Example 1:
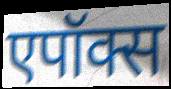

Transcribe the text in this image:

एपॉक्स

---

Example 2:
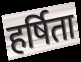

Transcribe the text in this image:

हर्षिता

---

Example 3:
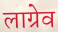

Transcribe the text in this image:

लाग्रेव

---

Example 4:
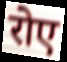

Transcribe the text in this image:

रोए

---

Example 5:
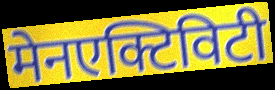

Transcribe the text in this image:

मेनएक्टिविटी